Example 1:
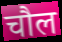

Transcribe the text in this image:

चौल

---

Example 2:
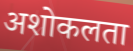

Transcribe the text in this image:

अशोकलता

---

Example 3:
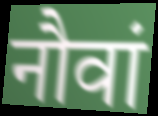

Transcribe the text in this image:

नौवां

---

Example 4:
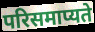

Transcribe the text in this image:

परिसमाप्यते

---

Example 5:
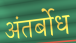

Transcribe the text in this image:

अंतर्बोध